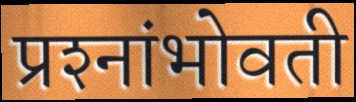
प्रश्नांभोवती